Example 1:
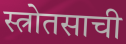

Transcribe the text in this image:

स्त्रोतसाची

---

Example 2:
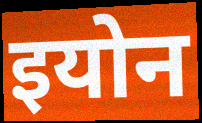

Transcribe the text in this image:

इयोन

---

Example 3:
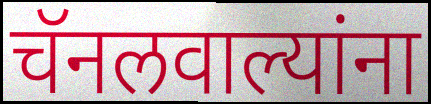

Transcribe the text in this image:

चॅनलवाल्यांना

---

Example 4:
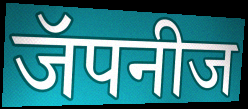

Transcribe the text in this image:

जॅपनीज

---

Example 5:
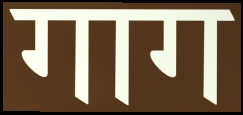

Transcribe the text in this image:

गाग